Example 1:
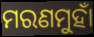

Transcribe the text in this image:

ମରଣମୁହାଁ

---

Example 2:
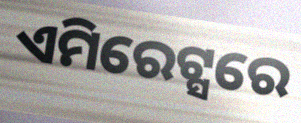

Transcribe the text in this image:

ଏମିରେଟ୍ସରେ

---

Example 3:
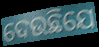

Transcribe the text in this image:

ଦେଉଛିଯେ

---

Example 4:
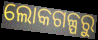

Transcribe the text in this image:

ଲୋକଗଳ୍ପରୁ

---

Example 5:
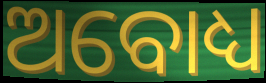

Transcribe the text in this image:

ଅବୋଧ୍ୟ